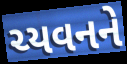
ચ્યવનને